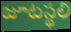
జూటస్థలి